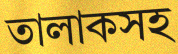
তালাকসহ